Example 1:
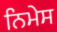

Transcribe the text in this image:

ਨਿਮੇਸ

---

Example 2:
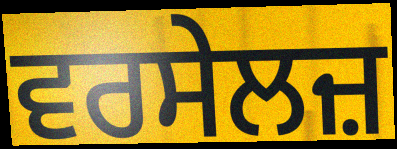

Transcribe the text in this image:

ਵਰਸੇਲਜ਼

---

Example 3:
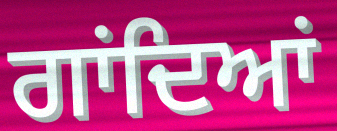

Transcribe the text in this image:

ਗਾਂਦਿਆਂ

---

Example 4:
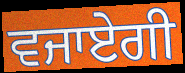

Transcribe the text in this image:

ਵਜਾਏਗੀ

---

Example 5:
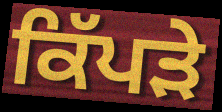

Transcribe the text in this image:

ਕਿੱਪੜੇ